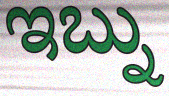
ಇಬ್ನು